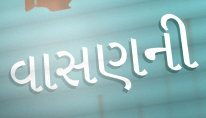
વાસણની